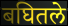
बघितले